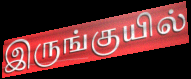
இருங்குயில்